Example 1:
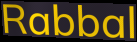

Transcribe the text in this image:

Rabbal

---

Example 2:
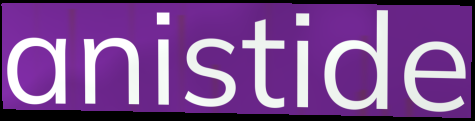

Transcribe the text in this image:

anistide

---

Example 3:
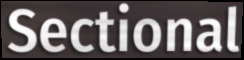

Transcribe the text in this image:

Sectional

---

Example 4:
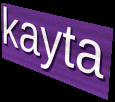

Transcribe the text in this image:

kayta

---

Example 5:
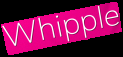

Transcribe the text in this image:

Whipple